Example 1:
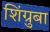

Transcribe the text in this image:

शिंग्रुबा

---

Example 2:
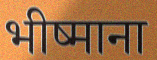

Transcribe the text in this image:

भीष्माना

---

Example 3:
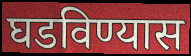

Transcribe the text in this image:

घडविण्यास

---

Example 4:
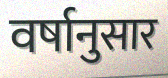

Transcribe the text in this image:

वर्षानुसार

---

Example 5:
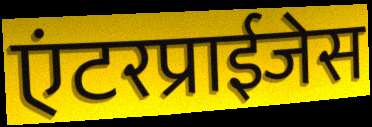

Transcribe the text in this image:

एंटरप्राईजेस